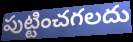
పుట్టించగలదు